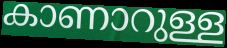
കാണാറുള്ള